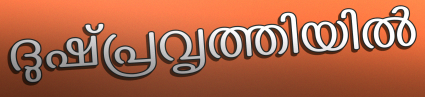
ദുഷ്പ്രവൃത്തിയിൽ